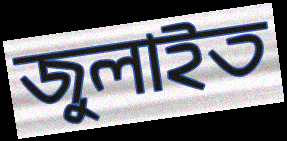
জুলাইত